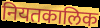
नियतकालिक